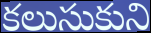
కలుసుకుని